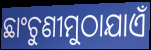
ଛାଂଚୁଣୀମୁଠାଯାଏଁ